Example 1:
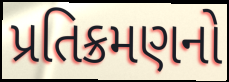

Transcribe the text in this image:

પ્રતિક્રમણનો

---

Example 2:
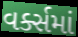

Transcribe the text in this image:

વર્ક્સમાં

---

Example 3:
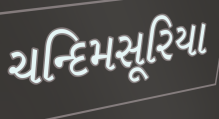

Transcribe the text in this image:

ચન્દિમસૂરિયા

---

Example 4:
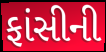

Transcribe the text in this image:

ફાંસીની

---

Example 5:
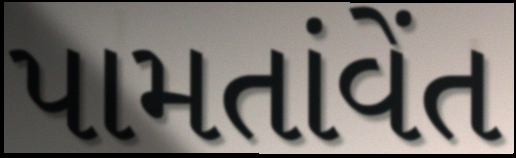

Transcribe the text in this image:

પામતાંવેંત